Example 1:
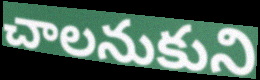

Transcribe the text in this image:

చాలనుకుని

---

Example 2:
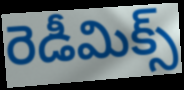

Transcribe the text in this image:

రెడీమిక్స్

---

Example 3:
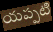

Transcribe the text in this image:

యప్పటి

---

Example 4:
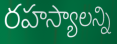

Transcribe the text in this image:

రహస్యాలన్ని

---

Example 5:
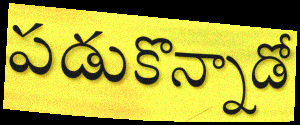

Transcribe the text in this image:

పడుకొన్నాడో